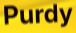
Purdy